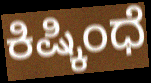
ಕಿಷ್ಕಿಂಧೆ